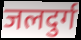
जलदुर्ग